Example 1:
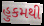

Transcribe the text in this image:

હુકમથી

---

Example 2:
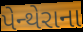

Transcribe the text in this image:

પેન્થેરાના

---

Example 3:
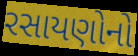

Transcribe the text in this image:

રસાયણોનો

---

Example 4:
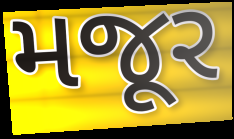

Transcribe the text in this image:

મજૂર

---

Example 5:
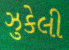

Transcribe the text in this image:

ઝુકેલી